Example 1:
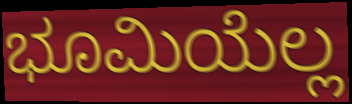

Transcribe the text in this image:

ಭೂಮಿಯೆಲ್ಲ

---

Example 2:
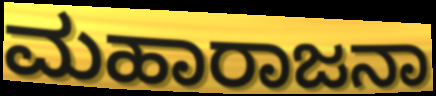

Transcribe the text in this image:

ಮಹಾರಾಜನಾ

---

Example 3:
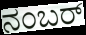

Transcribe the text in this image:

ನಂಬರ್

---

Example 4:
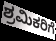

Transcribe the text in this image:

ಶ್ರಮಿಕರಿಗೆ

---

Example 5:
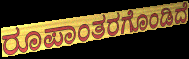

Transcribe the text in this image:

ರೂಪಾಂತರಗೊಂಡಿದೆ